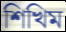
শিখিম